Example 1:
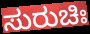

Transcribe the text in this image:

ಸುರುಚಿಃ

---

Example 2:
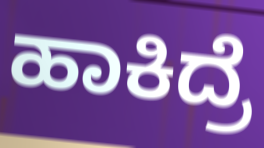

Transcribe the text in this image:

ಹಾಕಿದ್ರೆ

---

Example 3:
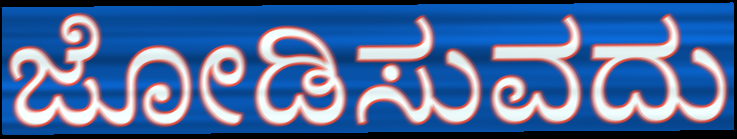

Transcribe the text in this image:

ಜೋಡಿಸುವದು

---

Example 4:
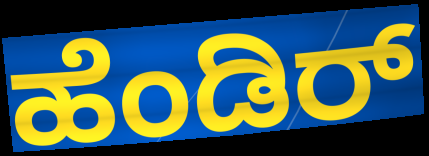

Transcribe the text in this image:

ಹೆಂಡಿರ್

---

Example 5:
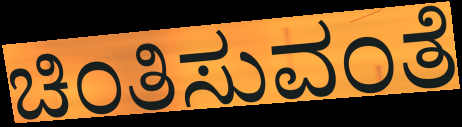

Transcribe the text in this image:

ಚಿಂತಿಸುವಂತೆ